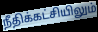
நீதிக்கட்சியிலும்